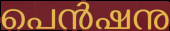
പെൻഷനു